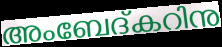
അംബേദ്കറിനു